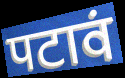
पटावं